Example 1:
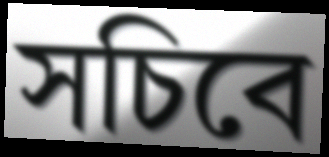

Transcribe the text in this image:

সচিবে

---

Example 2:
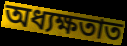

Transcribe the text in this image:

অধ্যক্ষতাত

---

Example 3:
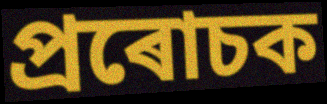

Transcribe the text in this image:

প্ৰৰোচক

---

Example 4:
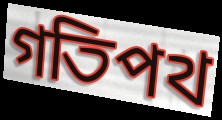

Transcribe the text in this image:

গতিপথ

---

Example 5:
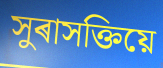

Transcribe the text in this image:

সুৰাসক্তিয়ে